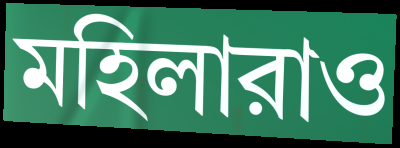
মহিলারাও